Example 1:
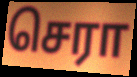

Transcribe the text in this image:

செரா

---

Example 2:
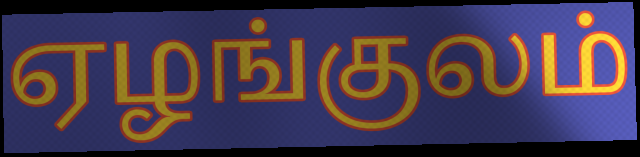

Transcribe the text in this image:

ஏழங்குலம்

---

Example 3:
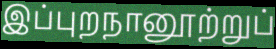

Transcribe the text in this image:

இப்புறநானூற்றுப்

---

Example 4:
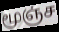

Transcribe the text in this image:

மூஞ்ச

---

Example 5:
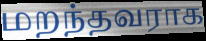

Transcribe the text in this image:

மறந்தவராக